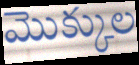
మొక్కుల